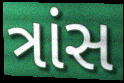
ત્રાંસ